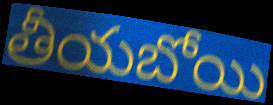
తీయబోయి